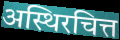
अस्थिरचित्त